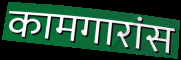
कामगारांस